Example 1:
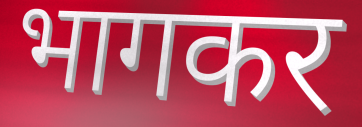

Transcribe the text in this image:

भागकर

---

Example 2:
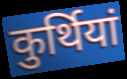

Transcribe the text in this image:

कुर्थियां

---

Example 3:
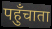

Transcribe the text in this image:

पहुँचाता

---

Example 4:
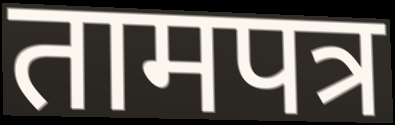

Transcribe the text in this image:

तामपत्र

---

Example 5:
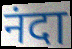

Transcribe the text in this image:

नंदा